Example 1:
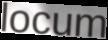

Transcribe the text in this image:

locum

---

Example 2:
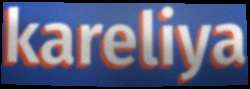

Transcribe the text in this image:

kareliya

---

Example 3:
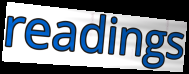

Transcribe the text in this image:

readings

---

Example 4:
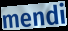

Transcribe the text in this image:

mendi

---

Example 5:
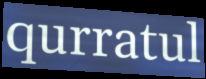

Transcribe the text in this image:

qurratul